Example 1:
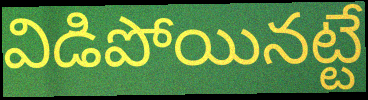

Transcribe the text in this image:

విడిపోయినట్టే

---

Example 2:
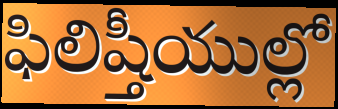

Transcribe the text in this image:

ఫిలిష్తీయుల్లో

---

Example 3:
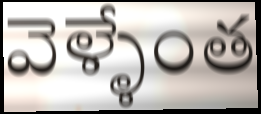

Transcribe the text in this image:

వెళ్ళేంత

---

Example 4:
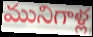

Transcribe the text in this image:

మునిగాళ్ల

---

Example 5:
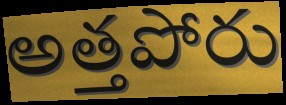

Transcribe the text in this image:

అత్తపోరు